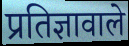
प्रतिज्ञावाले